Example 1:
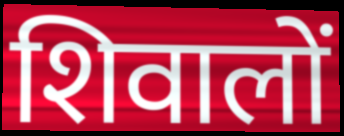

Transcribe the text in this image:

शिवालों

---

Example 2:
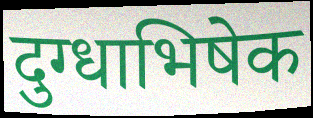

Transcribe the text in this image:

दुग्धाभिषेक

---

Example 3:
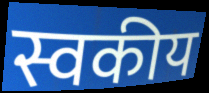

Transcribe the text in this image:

स्वकीय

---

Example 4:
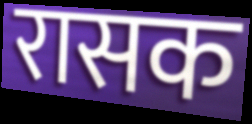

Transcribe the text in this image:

रासक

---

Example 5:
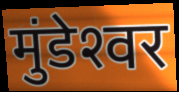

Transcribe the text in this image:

मुंडेश्वर